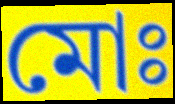
মোঃ